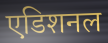
एडिशनल